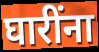
घारींना